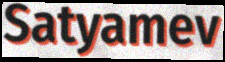
Satyamev